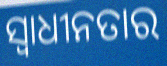
ସ୍ବାଧୀନତାର